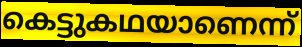
കെട്ടുകഥയാണെന്ന്